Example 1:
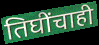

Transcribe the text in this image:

तिघींचाही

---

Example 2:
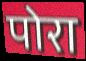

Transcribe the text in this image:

पोरा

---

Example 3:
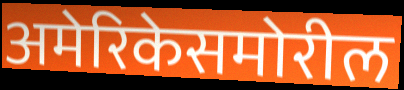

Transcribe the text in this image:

अमेरिकेसमोरील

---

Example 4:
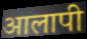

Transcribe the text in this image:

आलापी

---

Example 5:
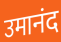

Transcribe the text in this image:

उमानंद